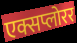
एक्सप्लोरर